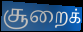
சூறைக்